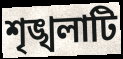
শৃঙ্খলাটি